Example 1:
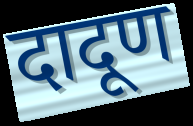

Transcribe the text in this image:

दादूण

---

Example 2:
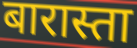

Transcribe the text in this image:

बारास्ता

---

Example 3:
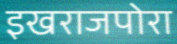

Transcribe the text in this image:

इखराजपोरा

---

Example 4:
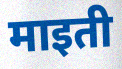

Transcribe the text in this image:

माइती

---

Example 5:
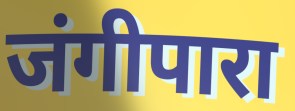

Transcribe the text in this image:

जंगीपारा